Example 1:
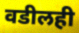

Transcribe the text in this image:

वडीलही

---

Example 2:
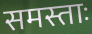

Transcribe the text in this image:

समस्ताः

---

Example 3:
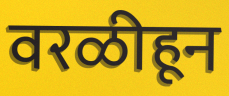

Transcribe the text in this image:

वरळीहून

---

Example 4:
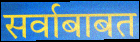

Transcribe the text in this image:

सर्वाबाबत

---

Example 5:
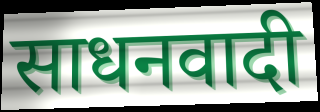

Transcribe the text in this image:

साधनवादी